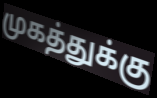
முகத்துக்கு